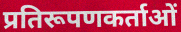
प्रतिरूपणकर्ताओं